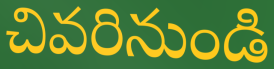
చివరినుండి